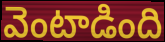
వెంటాడింది